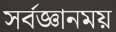
সর্বজ্ঞানময়